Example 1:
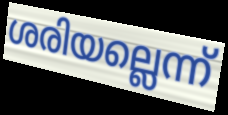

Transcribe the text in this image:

ശരിയല്ലെന്ന്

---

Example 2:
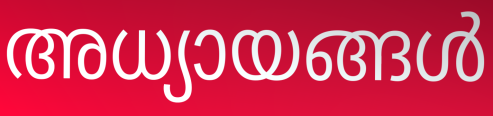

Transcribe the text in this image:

അധ്യായങ്ങൾ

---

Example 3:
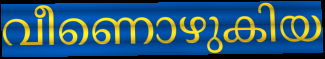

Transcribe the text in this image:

വീണൊഴുകിയ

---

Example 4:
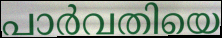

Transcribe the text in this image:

പാർവതിയെ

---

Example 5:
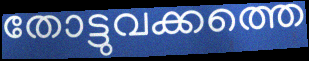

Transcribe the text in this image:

തോട്ടുവക്കത്തെ